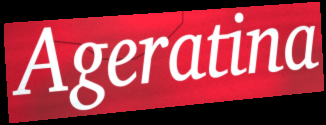
Ageratina